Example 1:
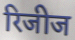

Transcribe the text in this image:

रिजीज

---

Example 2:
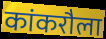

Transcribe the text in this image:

कांकरौला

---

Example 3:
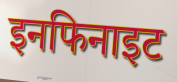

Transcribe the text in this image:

इनफिनाइट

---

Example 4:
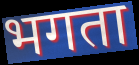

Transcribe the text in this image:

भगता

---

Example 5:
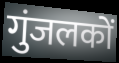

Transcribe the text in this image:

गुंजलकों